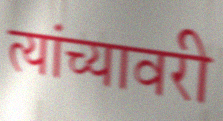
त्यांच्यावरी